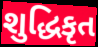
શુદ્ધિકૃત